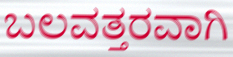
ಬಲವತ್ತರವಾಗಿ